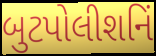
બુટપોલીશનિં